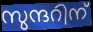
സുന്ദറിന്